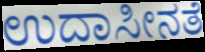
ಉದಾಸೀನತೆ